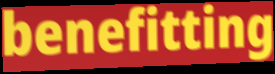
benefitting